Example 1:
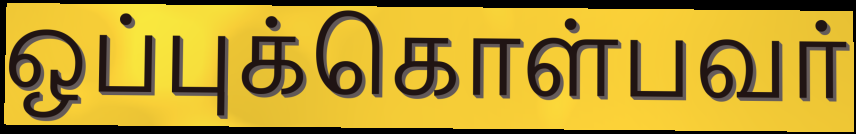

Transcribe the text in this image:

ஒப்புக்கொள்பவர்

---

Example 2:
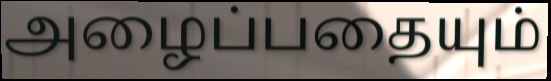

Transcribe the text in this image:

அழைப்பதையும்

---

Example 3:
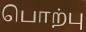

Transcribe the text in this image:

பொற்பு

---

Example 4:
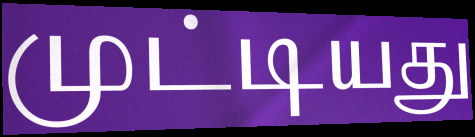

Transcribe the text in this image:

முட்டியது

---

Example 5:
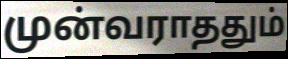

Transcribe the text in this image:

முன்வராததும்